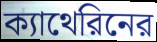
ক্যাথেরিনের